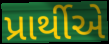
પ્રાર્થીએ